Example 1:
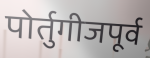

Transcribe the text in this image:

पोर्तुगीजपूर्व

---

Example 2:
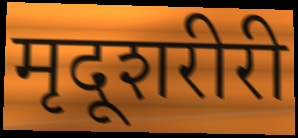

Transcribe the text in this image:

मृदूशरीरी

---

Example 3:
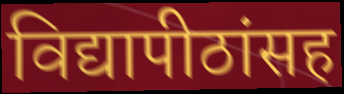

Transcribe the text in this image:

विद्यापीठांसह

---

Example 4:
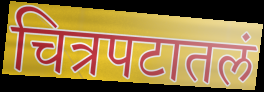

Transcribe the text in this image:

चित्रपटातलं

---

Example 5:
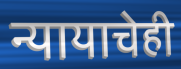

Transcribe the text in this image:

न्यायाचेही